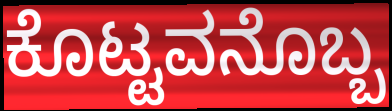
ಕೊಟ್ಟವನೊಬ್ಬ